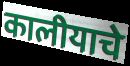
कालीयाचे